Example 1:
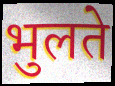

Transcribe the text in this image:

भुलते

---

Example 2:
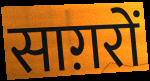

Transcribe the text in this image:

साग़रों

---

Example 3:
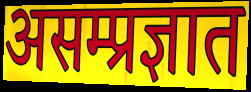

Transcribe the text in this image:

असम्प्रज्ञात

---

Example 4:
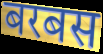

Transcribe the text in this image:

बरबस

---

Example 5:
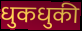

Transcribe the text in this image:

धुकधुकी